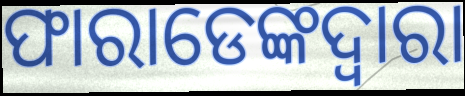
ଫାରାଡେଙ୍କଦ୍ୱାରା